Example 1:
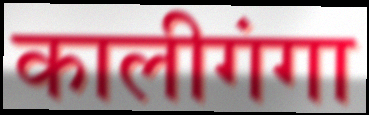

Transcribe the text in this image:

कालीगंगा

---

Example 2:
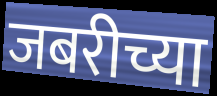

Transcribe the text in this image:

जबरीच्या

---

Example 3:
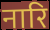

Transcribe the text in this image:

नारि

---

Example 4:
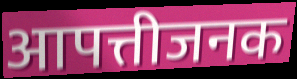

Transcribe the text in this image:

आपत्तीजनक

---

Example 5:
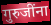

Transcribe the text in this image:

गुरुजींना